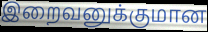
இறைவனுக்குமான